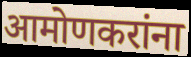
आमोणकरांना